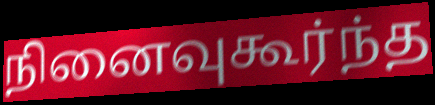
நினைவுகூர்ந்த